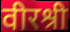
वीरश्री